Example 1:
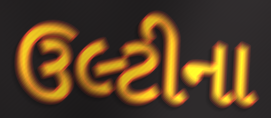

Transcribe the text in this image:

ઉલ્ટીના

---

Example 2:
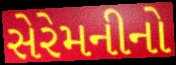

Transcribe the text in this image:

સેરેમનીનો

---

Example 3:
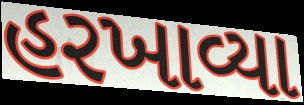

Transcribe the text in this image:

હરખાવ્યા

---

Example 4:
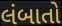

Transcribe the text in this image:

લંબાતો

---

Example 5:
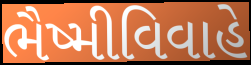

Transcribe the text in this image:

ભૈષ્મીવિવાહે